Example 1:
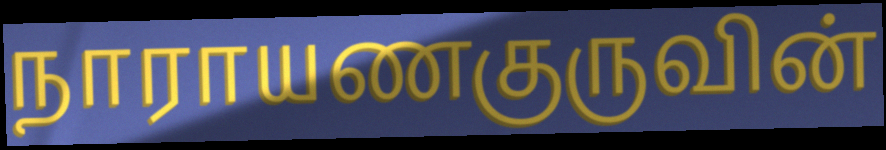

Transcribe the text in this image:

நாராயணகுருவின்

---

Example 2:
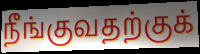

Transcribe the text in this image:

நீங்குவதற்குக்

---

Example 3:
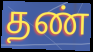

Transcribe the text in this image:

தண்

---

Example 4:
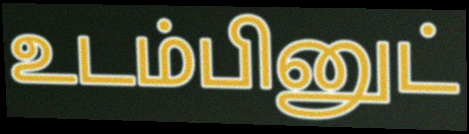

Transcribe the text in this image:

உடம்பினுட்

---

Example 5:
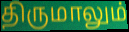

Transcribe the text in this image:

திருமாலும்